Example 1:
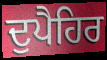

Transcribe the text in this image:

ਦੁਪੈਹਿਰ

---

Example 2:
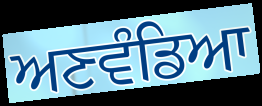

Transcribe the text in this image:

ਅਣਵੰਡਿਆ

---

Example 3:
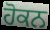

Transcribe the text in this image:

ਹੋਕਨ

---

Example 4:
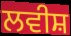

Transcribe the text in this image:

ਲਵੀਸ਼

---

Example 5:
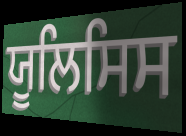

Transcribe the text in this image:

ਯੂਲਿਸਿਸ